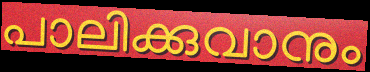
പാലിക്കുവാനും